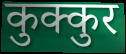
कुक्कुर